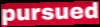
pursued